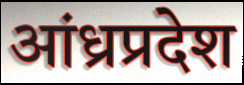
आंध्रप्रदेश